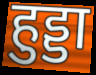
हुड्डा